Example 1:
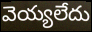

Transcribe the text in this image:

వెయ్యలేదు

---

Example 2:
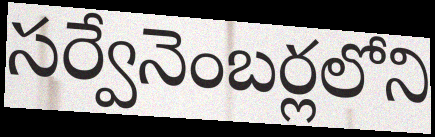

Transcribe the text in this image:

సర్వేనెంబర్లలోని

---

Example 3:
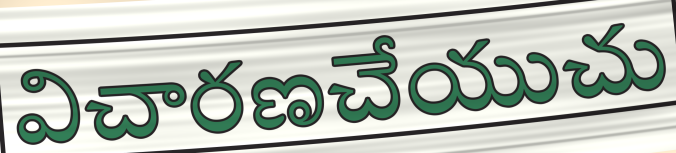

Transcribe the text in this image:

విచారణచేయుచు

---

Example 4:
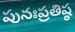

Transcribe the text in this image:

పునఃప్రతిష్ఠ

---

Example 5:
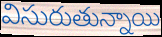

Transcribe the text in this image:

విసురుతున్నాయి